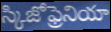
స్కిజోఫ్రెనియా